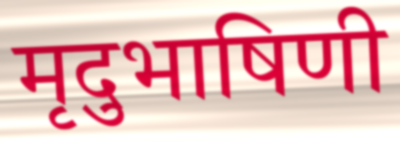
मृदुभाषिणी